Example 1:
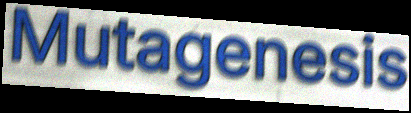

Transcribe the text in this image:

Mutagenesis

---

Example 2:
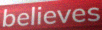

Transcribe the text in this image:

believes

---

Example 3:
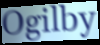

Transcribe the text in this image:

Ogilby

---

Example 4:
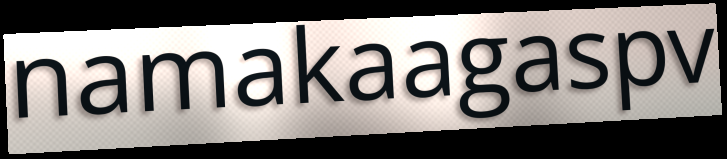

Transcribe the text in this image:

namakaagaspv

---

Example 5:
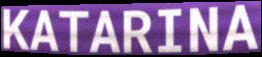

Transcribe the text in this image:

KATARINA